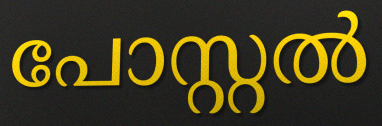
പോസ്റ്റൽ